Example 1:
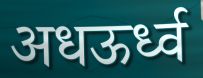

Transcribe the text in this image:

अधऊर्ध्व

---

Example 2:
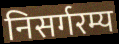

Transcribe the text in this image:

निसर्गरम्य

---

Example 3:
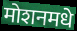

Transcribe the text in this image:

मोशनमधे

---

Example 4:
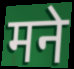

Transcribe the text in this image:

मने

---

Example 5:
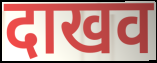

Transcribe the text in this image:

दाखव